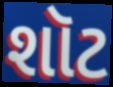
શૉટ